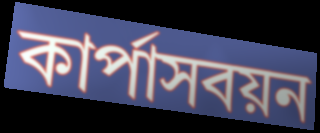
কার্পাসবয়ন